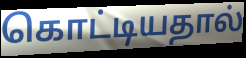
கொட்டியதால்